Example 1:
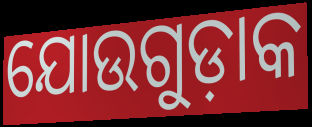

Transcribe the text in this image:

ଯୋଉଗୁଡ଼ାକ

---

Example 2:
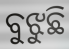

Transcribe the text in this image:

ବୁଝୁଛି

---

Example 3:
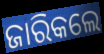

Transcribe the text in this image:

ଜାରିକଲେ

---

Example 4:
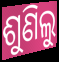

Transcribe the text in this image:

ଶୁଣିଲୁ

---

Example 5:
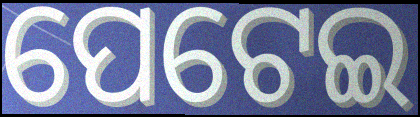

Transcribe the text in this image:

ପେଟେଇ